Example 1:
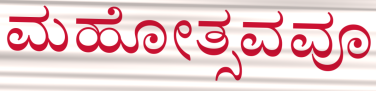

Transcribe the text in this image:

ಮಹೋತ್ಸವವೂ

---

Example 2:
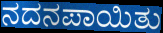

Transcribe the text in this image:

ನದನಪಾಯಿತು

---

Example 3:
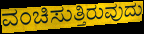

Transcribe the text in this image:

ವಂಚಿಸುತ್ತಿರುವುದು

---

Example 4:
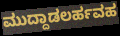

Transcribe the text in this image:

ಮುದ್ದಾಡಲರ್ಹವಹ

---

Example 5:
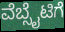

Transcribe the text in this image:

ವೆಬ್ಸೈಟಿಗೆ